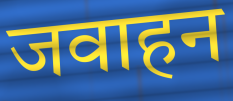
जवाहन